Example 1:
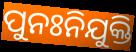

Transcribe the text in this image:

ପୁନଃନିଯୁକ୍ତି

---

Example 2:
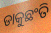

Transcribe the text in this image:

ଡାକୁଛଂତି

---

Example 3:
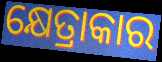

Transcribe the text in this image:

କ୍ଷେତ୍ରାକାର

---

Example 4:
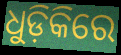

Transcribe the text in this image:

ଧୁଡ଼ିକିରେ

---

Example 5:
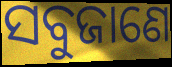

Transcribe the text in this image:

ସବୁଜାଣେ